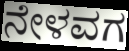
ನೇಳವಗ